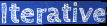
Iterative